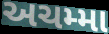
અચમ્મા